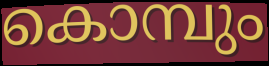
കൊമ്പും